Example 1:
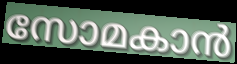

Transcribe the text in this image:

സോമകാൻ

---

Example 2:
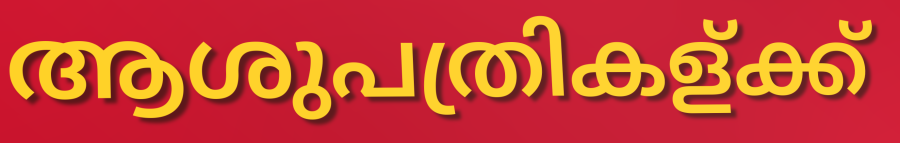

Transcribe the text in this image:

ആശുപത്രികള്ക്ക്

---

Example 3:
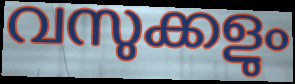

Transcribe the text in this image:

വസുക്കളും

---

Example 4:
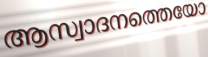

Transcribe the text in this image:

ആസ്വാദനത്തെയോ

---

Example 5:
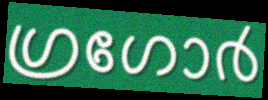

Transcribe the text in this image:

ഗ്രഗോർ